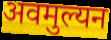
अवमुल्यन